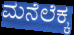
ಮನೆಲೆಕ್ಕ